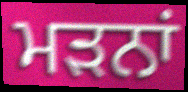
ਮੜਨਾਂ